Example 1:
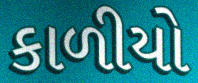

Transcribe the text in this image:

કાળીયો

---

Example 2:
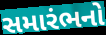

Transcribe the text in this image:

સમારંભનો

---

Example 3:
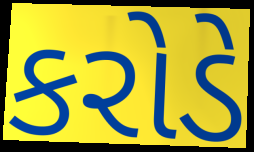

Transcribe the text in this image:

કરોડે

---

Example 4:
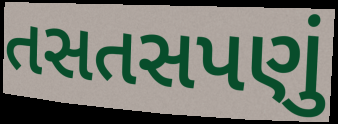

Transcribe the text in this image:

તસતસપણું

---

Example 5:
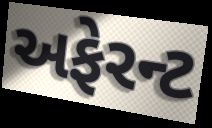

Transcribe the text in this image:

અફેરન્ટ